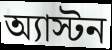
অ্যাস্টন